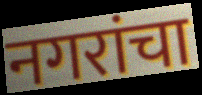
नगरांचा